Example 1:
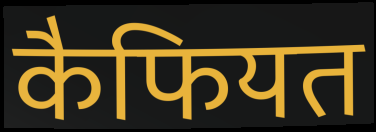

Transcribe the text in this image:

कैफियत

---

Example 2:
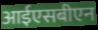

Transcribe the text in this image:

आईएसबीएन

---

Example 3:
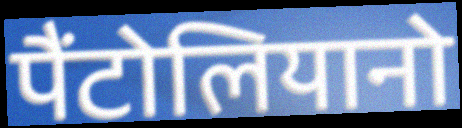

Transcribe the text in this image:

पैंटोलियानो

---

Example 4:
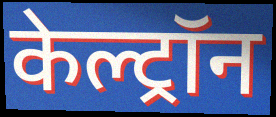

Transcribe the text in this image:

केल्ट्रॉन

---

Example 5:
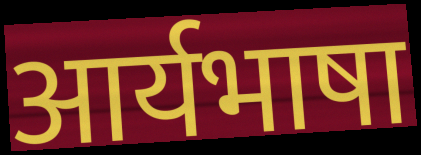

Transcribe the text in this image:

आर्यभाषा